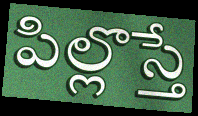
పిల్లొస్తే